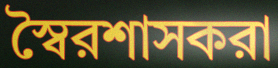
স্বৈরশাসকরা